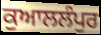
ਕੁਆਲਲੰਪੁਰ